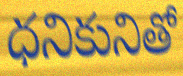
ధనికునితో